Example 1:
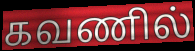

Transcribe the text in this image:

கவணில்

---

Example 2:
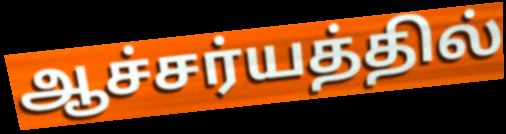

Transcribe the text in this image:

ஆச்சர்யத்தில்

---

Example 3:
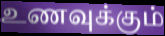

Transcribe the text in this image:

உணவுக்கும்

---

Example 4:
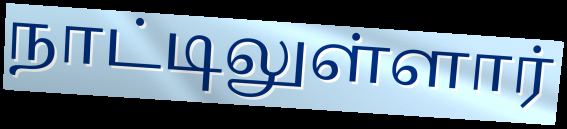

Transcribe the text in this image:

நாட்டிலுள்ளார்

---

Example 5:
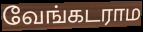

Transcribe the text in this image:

வேங்கடராம